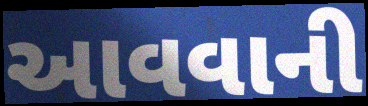
આવવાની